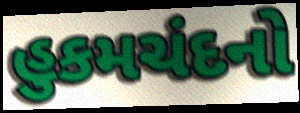
હુકમચંદનો